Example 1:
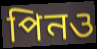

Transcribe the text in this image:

পিনও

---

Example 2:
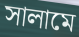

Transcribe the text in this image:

সালামে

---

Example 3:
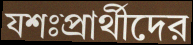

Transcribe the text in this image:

যশঃপ্রার্থীদের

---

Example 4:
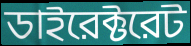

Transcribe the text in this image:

ডাইরেক্টরেট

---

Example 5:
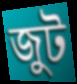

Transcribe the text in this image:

জুট